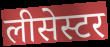
लीसेस्टर